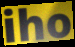
iho